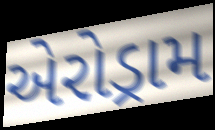
એરોડ્રામ